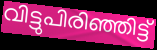
വിട്ടുപിരിഞ്ഞിട്ട്